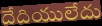
దేదియులేదు